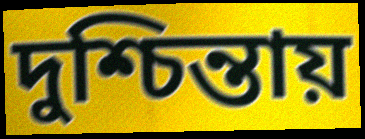
দুশ্চিন্তায়